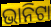
ଭାନିଟା